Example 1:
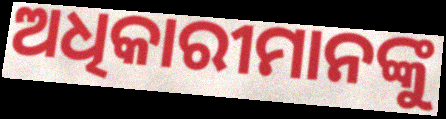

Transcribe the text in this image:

ଅଧିକାରୀମାନଙ୍କୁ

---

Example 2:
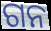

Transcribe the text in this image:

ଗନ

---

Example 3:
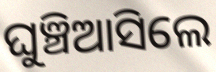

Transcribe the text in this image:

ଘୁଞ୍ଚିଆସିଲେ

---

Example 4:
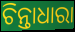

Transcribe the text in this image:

ଚିନ୍ତାଧାରା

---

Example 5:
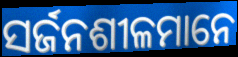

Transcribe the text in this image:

ସର୍ଜନଶୀଳମାନେ